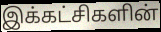
இக்கட்சிகளின்